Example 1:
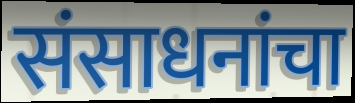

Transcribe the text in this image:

संसाधनांचा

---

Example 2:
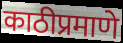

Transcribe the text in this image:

काठीप्रमाणे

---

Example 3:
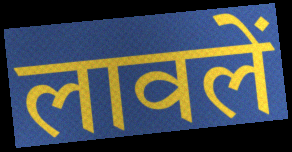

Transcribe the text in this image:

लावलें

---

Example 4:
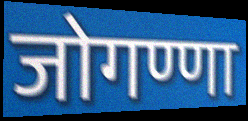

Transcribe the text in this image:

जोगण्णा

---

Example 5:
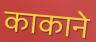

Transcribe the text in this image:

काकाने